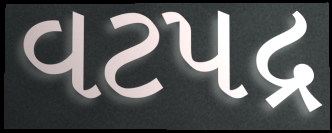
વટપદ્ર